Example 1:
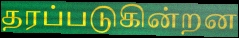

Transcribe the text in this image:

தரப்படுகின்றன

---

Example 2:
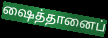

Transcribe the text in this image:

ஷைத்தானைப்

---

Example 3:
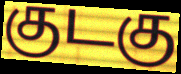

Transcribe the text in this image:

குடகு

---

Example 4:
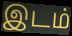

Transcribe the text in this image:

இடம்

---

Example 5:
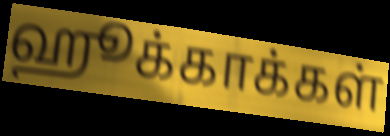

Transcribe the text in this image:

ஹூக்காக்கள்